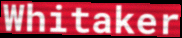
Whitaker